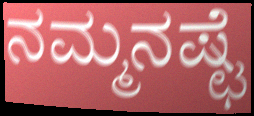
ನಮ್ಮನಷ್ಟೆ